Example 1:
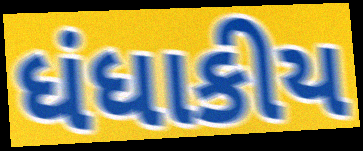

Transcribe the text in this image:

ધંધાકીય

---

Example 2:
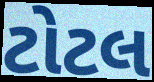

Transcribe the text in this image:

ટોટલ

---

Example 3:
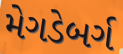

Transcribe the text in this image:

મેગડેબર્ગ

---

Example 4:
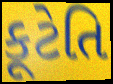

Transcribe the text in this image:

કૂટેતિ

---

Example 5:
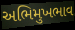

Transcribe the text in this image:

અભિમુખભાવ